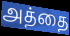
அத்தை